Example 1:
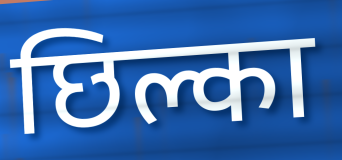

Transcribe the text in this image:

छिल्का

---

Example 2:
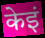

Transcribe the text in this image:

केइं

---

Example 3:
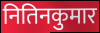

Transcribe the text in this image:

नितिनकुमार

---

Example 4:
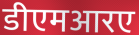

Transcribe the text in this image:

डीएमआरए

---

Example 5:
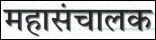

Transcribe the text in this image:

महासंचालक